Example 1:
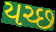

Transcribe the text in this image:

યચ્છ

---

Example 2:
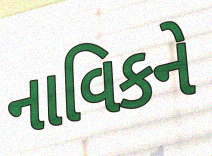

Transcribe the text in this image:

નાવિકને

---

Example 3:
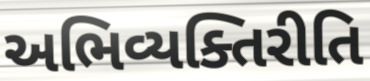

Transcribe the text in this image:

અભિવ્યક્તિરીતિ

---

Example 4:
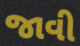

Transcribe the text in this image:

જાવી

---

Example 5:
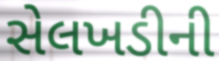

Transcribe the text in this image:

સેલખડીની